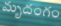
మృదంగం